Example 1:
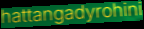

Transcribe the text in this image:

hattangadyrohini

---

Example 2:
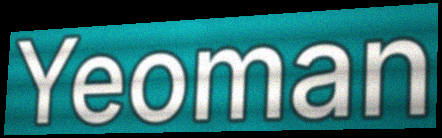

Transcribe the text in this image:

Yeoman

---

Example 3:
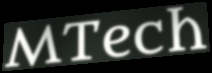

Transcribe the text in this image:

MTech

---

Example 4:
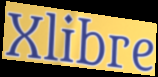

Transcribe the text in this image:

Xlibre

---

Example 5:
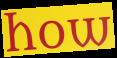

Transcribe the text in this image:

how